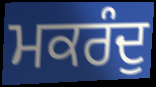
ਮਕਰੰਦੁ